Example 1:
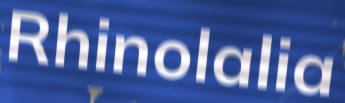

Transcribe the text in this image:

Rhinolalia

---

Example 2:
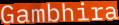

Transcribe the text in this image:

Gambhira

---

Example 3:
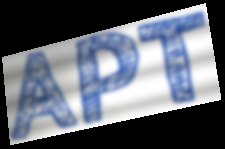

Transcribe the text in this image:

APT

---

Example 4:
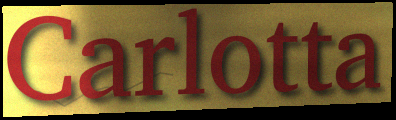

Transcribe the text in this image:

Carlotta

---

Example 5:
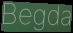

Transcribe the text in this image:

Begda